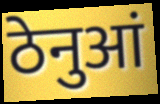
ठेनुआं